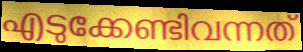
എടുക്കേണ്ടിവന്നത്